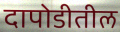
दापोडीतील